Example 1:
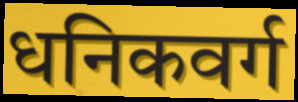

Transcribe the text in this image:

धनिकवर्ग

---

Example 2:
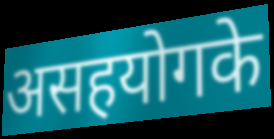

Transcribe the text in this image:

असहयोगके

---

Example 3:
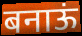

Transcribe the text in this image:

बनाऊं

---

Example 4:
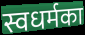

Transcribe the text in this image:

स्वधर्मका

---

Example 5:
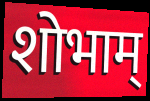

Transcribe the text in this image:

शोभाम्